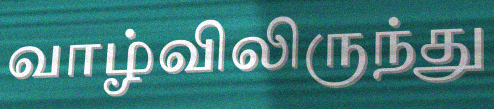
வாழ்விலிருந்து